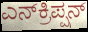
ಎನ್‌ಕ್ರಿಪ್ಷನ್